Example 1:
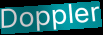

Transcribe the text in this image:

Doppler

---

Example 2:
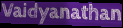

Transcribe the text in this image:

Vaidyanathan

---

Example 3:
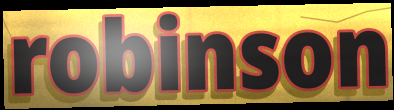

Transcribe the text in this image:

robinson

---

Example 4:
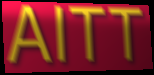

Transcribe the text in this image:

AITT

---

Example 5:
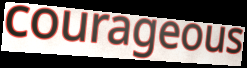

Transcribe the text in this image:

courageous